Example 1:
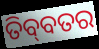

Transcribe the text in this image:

ତିବ୍‌ବତର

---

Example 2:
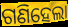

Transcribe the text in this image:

ଗଣିହେଲା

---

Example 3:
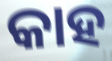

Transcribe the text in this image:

କାହ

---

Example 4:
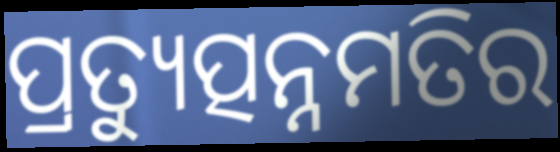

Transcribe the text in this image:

ପ୍ରତ୍ୟୁତ୍ପନ୍ନମତିର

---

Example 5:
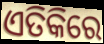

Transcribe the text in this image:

ଏତିକିରେ